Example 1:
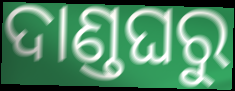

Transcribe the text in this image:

ଦାଣ୍ଡଘରୁ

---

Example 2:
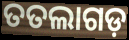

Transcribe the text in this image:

ତତଲାଗଡ଼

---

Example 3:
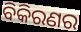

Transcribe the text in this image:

ବିକିରଣର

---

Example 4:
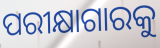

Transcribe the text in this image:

ପରୀକ୍ଷାଗାରକୁ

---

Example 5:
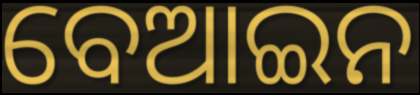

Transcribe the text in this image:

ବେଆଇନ